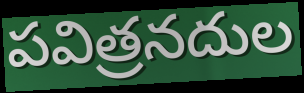
పవిత్రనదుల